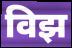
विझ